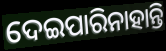
ଦେଇପାରିନାହାନ୍ତି